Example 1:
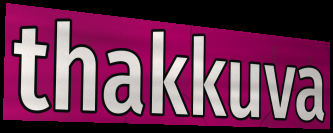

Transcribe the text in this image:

thakkuva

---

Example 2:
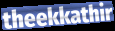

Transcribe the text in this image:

theekkathir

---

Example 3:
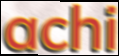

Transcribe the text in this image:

achi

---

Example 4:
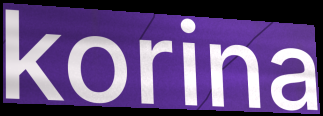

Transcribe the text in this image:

korina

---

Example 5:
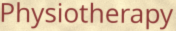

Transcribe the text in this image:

Physiotherapy